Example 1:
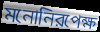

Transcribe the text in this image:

মনোনিরপেক্ষ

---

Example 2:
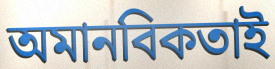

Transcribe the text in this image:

অমানবিকতাই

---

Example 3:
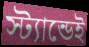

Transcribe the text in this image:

স্ট্যান্ডেই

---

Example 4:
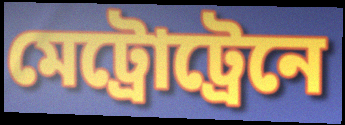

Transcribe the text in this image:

মেট্রোট্রেনে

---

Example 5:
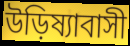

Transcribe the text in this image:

উড়িষ্যাবাসী